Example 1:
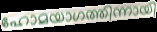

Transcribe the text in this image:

ഹോമയാഗത്തിന്നായി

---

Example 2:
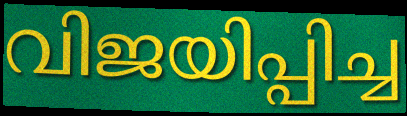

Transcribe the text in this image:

വിജയിപ്പിച്ച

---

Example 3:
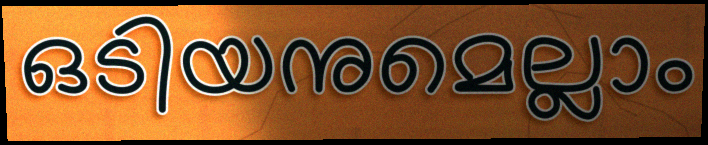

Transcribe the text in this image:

ഒടിയനുമെല്ലാം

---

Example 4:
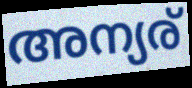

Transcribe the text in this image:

അന്യര്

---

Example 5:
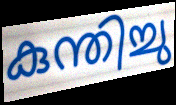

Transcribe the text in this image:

കുന്തിച്ചു